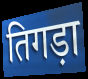
तिगड़ा